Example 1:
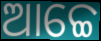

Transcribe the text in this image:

ଆଚ୍ଚେ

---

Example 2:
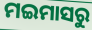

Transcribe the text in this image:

ମଇମାସରୁ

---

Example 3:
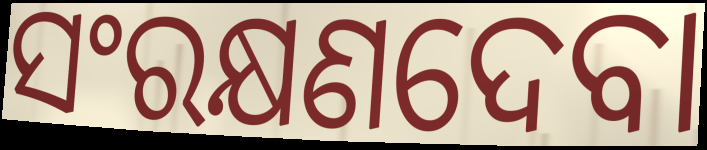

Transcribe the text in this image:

ସଂରକ୍ଷଣଦେବା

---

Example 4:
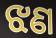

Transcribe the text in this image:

ଝଣ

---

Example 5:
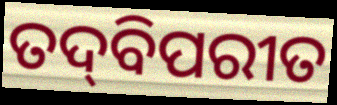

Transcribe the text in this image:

ତଦ୍‍ବିପରୀତ